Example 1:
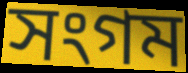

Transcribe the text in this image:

সংগম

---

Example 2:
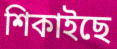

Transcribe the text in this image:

শিকাইছে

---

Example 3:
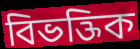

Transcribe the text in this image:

বিভক্তিক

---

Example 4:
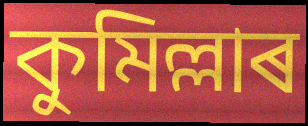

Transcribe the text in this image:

কুমিল্লাৰ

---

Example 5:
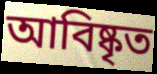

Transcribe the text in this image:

আবিষ্কৃত